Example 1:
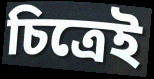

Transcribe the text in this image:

চিত্রেই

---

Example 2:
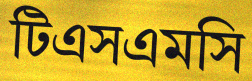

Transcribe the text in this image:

টিএসএমসি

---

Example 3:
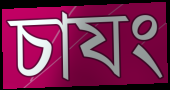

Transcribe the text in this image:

চাযং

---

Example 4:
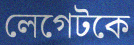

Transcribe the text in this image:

লেগেটকে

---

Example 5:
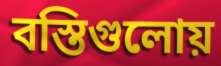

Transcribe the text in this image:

বস্তিগুলোয়